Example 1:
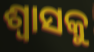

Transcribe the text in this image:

ଶ୍ଵାସକୁ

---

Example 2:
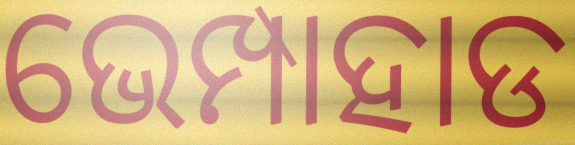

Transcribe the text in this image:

ଭେମ୍ପାହାଡ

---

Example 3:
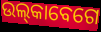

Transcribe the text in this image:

ଉଲ୍‌କାବେଗେ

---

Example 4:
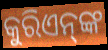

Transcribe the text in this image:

କୁରିଏନ୍‌ଙ୍କ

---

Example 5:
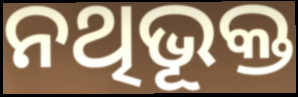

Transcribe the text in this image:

ନଥିଭୂକ୍ତ